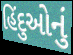
હિંદુઓનું